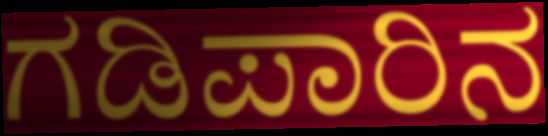
ಗಡಿಪಾರಿನ